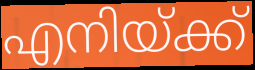
എനിയ്ക്ക്